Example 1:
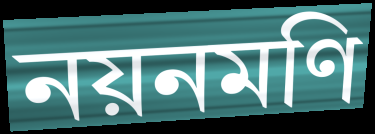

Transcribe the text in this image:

নয়নমণি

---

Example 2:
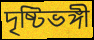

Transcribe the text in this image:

দৃষ্টিভঙ্গী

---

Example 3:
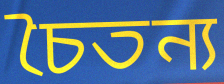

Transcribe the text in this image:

চৈতন্য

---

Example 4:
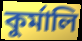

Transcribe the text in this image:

কুৰ্মালি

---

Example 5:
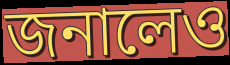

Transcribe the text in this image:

জনালেও